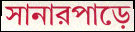
সানারপাড়ে